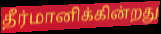
தீர்மானிக்கின்றது